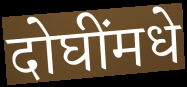
दोघींमधे